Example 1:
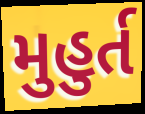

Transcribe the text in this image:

મુહુર્ત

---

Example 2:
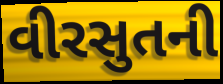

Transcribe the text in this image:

વીરસુતની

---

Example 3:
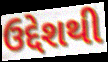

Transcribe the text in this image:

ઉદ્દેશથી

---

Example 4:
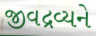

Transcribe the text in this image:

જીવદ્રવ્યને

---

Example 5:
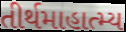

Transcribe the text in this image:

તીર્થમાહાત્મ્ય